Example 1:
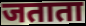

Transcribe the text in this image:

जताता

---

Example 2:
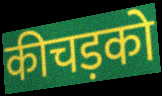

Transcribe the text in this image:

कीचड़को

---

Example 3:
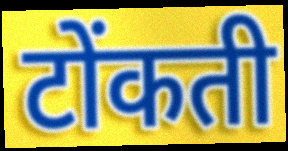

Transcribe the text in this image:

टोंकती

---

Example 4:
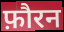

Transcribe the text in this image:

फ़ौरन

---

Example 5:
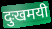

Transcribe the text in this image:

दुःखमयी